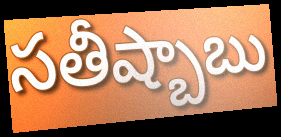
సతీష్బాబు